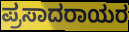
ಪ್ರಸಾದರಾಯರ